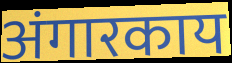
अंगारकाय